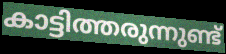
കാട്ടിത്തരുന്നുണ്ട്